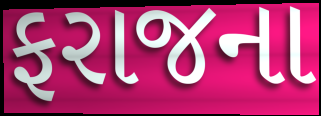
ફરાજના